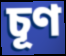
চূণ